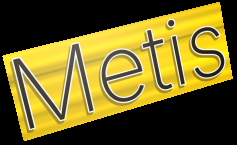
Metis